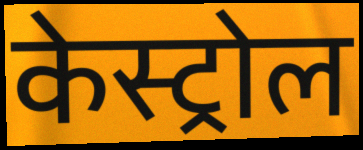
केस्ट्रोल